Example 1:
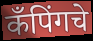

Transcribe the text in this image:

कँपिंगचे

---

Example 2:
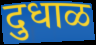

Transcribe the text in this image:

दुधाळ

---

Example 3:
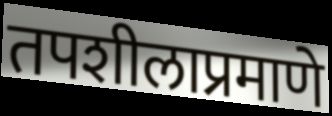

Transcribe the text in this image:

तपशीलाप्रमाणे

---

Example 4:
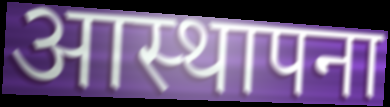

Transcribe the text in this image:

आस्थापना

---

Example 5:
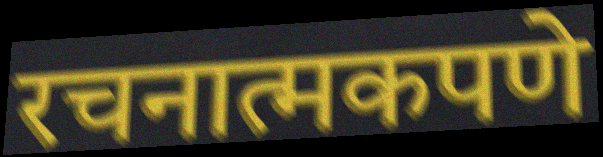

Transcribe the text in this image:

रचनात्मकपणे